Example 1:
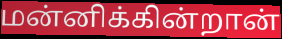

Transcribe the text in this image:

மன்னிக்கின்றான்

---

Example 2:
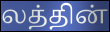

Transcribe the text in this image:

லத்தின்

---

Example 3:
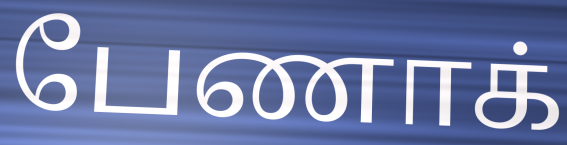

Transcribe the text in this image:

பேணாக்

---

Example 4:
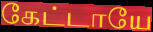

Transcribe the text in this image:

கேட்டாயே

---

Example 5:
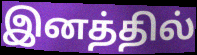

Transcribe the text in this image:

இனத்தில்